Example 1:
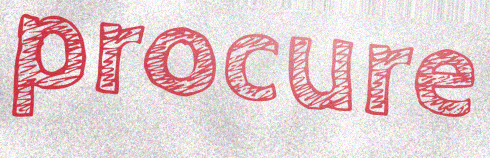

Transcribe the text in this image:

procure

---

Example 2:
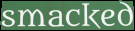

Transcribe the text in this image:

smacked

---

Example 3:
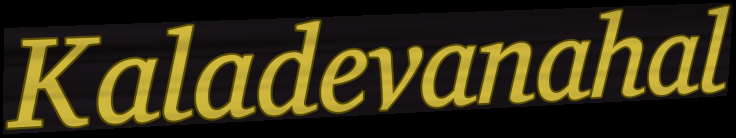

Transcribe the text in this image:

Kaladevanahal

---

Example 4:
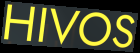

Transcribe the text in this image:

HIVOS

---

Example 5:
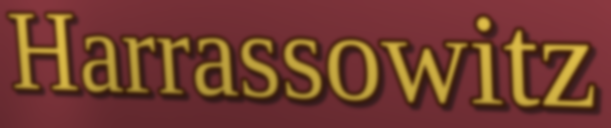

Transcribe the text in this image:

Harrassowitz